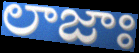
లాజాః